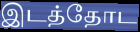
இடத்தோட